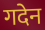
गदेन